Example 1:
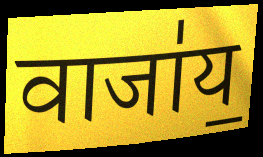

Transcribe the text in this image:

वाजा॑य॒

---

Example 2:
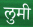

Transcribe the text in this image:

लुमी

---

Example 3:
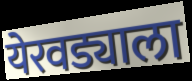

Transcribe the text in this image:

येरवड्याला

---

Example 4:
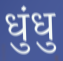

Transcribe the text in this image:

धुंधु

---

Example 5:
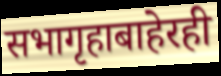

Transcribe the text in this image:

सभागृहाबाहेरही